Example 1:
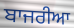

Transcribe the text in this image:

ਬਾਜਰੀਆ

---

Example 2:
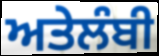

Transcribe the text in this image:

ਅਤੇਲੰਬੀ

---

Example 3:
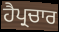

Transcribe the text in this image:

ਹੈਪ੍ਰਚਾਰ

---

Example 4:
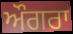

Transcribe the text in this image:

ਔਗਰਾ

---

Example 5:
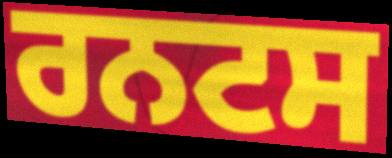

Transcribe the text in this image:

ਰਨਟਸ